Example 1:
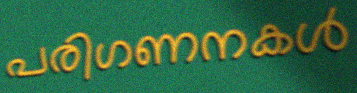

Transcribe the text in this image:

പരിഗണനകൾ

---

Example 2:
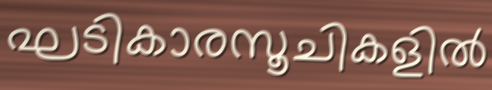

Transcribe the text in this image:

ഘടികാരസൂചികളിൽ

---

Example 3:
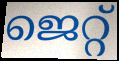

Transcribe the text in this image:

ജെറ്റ്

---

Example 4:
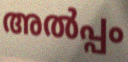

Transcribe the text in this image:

അൽപ്പം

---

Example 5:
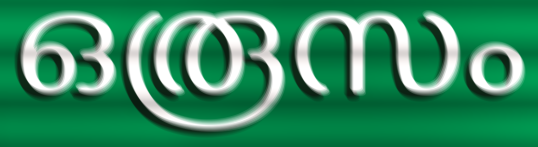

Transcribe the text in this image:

ഒരൂസം